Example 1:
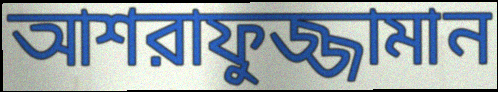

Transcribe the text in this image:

আশরাফুজ্জামান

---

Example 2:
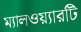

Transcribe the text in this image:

ম্যালওয়্যারটি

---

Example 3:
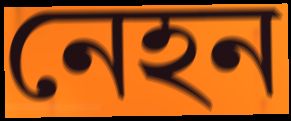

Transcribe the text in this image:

নেহন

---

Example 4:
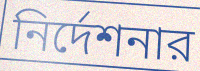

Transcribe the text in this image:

নির্দেশনার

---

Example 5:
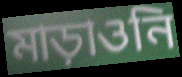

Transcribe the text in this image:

মাড়াওনি